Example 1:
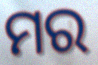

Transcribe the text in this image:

ମର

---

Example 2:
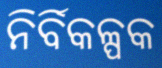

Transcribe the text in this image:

ନିର୍ବିକଳ୍ପକ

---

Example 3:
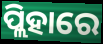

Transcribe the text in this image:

ପ୍ଲିହାରେ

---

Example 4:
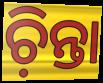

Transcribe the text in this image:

ଚ଼ିନ୍ତା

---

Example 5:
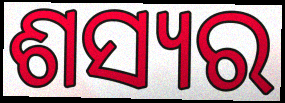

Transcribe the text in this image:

ଶସ୍ଯର